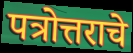
पत्रोत्तराचे